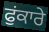
ਫੁਂਕਾਰੇ